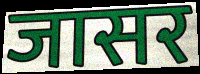
जासर